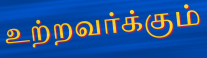
உற்றவர்க்கும்